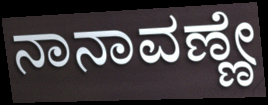
ನಾನಾವಣ್ಣೇ